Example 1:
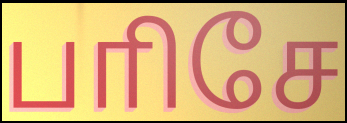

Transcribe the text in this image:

பரிசே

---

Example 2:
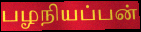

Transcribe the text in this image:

பழநியப்பன்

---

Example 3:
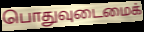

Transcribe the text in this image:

பொதுவுடைமைக்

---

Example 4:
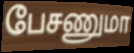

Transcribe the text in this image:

பேசணுமா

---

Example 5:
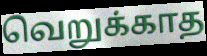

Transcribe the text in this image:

வெறுக்காத